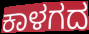
ಕಾಳಗದ